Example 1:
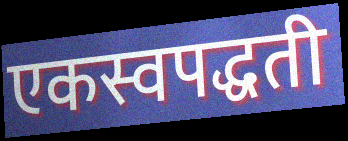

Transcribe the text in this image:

एकस्वपद्धती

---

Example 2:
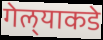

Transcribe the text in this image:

गेल्याकडे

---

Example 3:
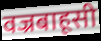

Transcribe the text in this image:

वज्रबाहूसी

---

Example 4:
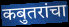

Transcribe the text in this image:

कबुतरांचा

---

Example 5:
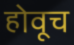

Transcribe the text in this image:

होवूच